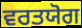
ਵਰਤਯੋਗ